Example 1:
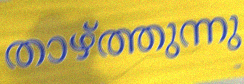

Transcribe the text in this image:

താഴ്ത്തുന്നു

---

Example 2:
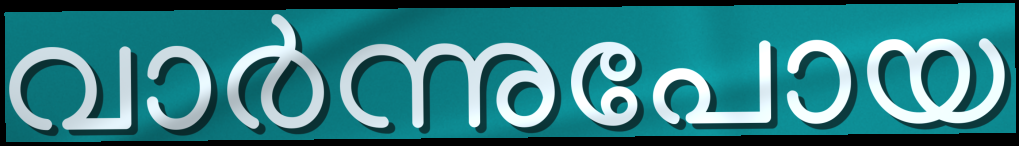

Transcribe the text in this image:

വാർന്നുപോയ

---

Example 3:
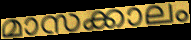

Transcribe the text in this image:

മാസക്കാലം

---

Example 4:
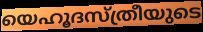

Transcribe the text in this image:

യെഹൂദസ്ത്രീയുടെ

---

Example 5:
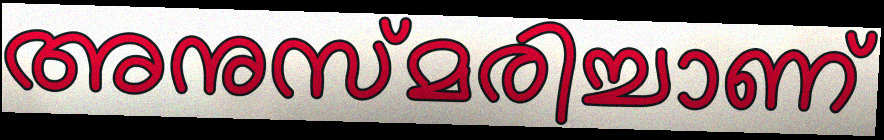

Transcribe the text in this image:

അനുസ്മരിച്ചാണ്